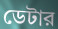
ডেটার